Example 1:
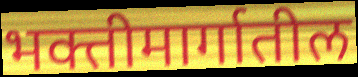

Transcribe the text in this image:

भक्तीमार्गातील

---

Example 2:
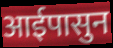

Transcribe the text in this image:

आईपासुन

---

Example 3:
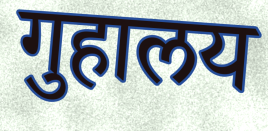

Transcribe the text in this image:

गुहालय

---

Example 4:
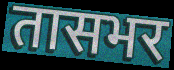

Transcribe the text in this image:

तासभर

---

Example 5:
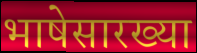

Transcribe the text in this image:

भाषेसारख्या